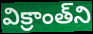
విక్రాంత్‌ని